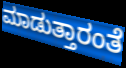
ಮಾಡುತ್ತಾರಂತೆ